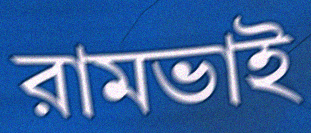
রামভাই